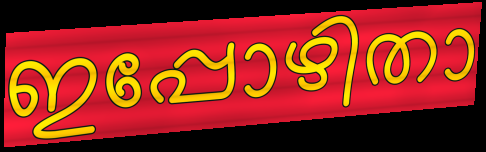
ഇപ്പോഴിതാ